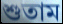
শুতাম